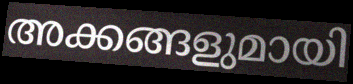
അക്കങ്ങളുമായി